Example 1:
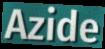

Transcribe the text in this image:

Azide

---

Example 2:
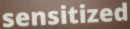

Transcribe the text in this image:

sensitized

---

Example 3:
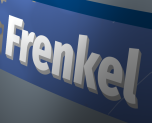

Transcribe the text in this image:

Frenkel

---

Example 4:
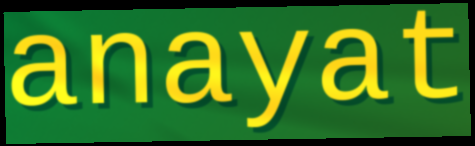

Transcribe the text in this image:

anayat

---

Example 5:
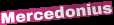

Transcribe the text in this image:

Mercedonius